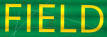
FIELD